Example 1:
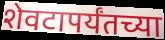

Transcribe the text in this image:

शेवटापर्यंतच्या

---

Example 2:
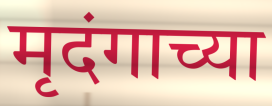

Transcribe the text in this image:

मृदंगाच्या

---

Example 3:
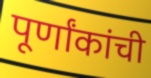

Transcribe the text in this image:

पूर्णांकांची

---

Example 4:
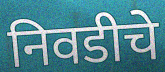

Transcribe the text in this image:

निवडीचे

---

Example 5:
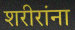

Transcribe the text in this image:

शरीरांना